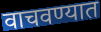
वाचवण्यात